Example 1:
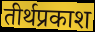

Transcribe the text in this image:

तीर्थप्रकाश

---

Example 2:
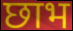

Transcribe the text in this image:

छाभ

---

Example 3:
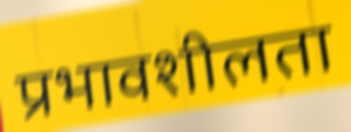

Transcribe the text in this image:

प्रभावशीलता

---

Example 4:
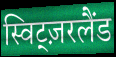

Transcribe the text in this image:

स्विट्ज़रलैंड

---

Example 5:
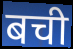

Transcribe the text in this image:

बची